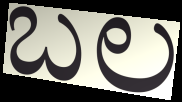
ಬಲ